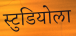
स्टुडियोला